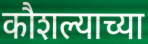
कौशल्याच्या